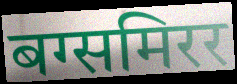
बग्समिरर